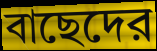
বাছেদের